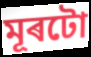
মূৰটো